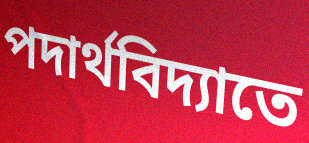
পদার্থবিদ্যাতে